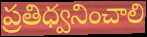
ప్రతిధ్వనించాలి